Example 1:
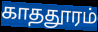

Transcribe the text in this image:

காததூரம்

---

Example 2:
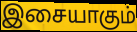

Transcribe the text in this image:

இசையாகும்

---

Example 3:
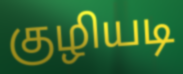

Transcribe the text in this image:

குழியடி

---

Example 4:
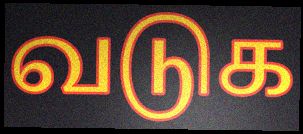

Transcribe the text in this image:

வடுக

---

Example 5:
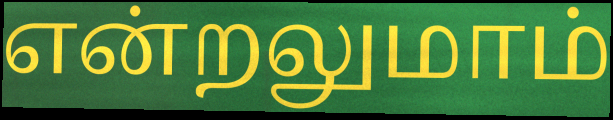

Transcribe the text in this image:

என்றலுமாம்